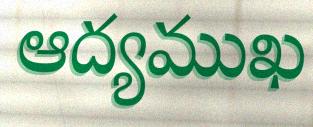
ఆద్యముఖ